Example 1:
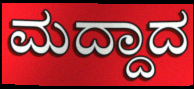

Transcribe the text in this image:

ಮದ್ದಾದ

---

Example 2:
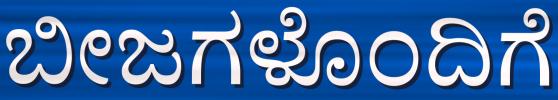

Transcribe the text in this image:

ಬೀಜಗಳೊಂದಿಗೆ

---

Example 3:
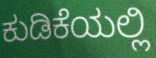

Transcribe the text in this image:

ಕುಡಿಕೆಯಲ್ಲಿ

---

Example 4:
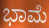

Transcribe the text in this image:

ಭಾಮೆ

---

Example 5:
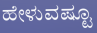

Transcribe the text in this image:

ಹೇಳುವಷ್ಟೂ